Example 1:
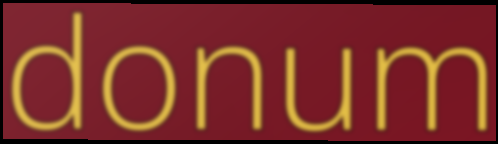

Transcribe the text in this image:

donum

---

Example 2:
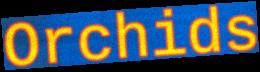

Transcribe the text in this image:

Orchids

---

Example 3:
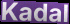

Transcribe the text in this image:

Kadal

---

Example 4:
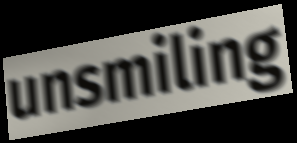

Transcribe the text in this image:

unsmiling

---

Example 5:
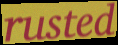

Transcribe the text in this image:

rusted